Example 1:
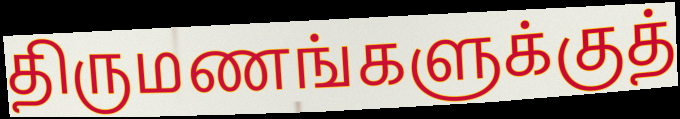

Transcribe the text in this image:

திருமணங்களுக்குத்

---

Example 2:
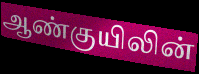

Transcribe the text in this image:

ஆண்குயிலின்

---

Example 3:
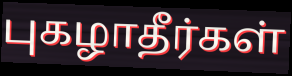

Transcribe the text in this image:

புகழாதீர்கள்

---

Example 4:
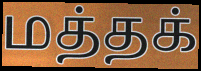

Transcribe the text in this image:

மத்தக்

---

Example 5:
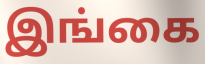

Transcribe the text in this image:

இங்கை